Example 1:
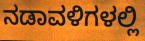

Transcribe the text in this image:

ನಡಾವಳಿಗಳಲ್ಲಿ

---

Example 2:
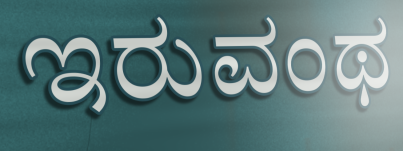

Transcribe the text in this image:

ಇರುವಂಥ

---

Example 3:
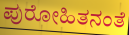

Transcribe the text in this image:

ಪುರೋಹಿತನಂತೆ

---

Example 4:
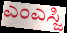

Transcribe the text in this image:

ಎಂಎಸ್ಜಿ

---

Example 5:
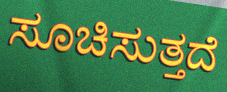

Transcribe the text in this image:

ಸೂಚಿಸುತ್ತದೆ